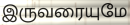
இருவரையுமே